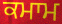
ਕਮਾਮ